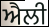
ਐਲੀ